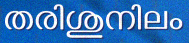
തരിശുനിലം